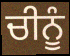
ਚੀਨੂੰ